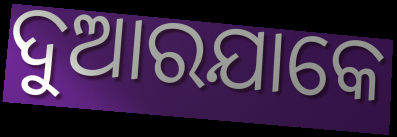
ଦୁଆରଯାକେ